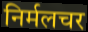
निर्मलचर